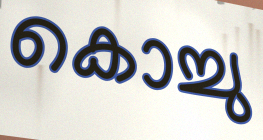
കൊച്ചു